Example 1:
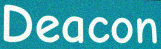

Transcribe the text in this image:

Deacon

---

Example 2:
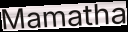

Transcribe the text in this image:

Mamatha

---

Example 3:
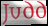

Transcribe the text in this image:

Judd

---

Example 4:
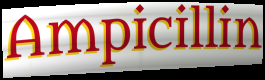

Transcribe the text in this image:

Ampicillin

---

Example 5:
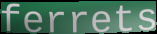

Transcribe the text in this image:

ferrets